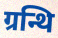
ग्रन्थि